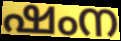
ഷംന